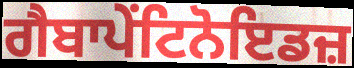
ਗੈਬਾਪੇਂਟਿਨੋਇਡਜ਼